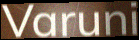
Varuni